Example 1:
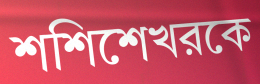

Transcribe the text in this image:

শশিশেখরকে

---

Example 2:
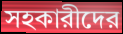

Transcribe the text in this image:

সহকারীদের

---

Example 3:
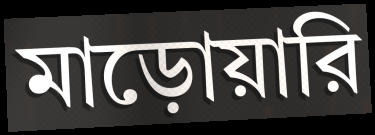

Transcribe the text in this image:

মাড়োয়ারি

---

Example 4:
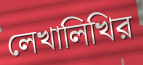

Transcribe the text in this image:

লেখালিখির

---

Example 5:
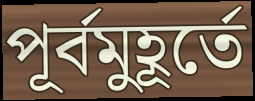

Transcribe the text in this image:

পূর্বমুহূর্তে